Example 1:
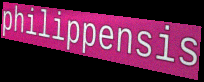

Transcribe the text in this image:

philippensis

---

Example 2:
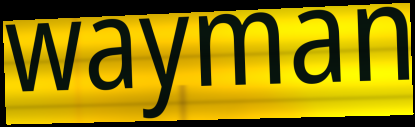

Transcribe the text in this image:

wayman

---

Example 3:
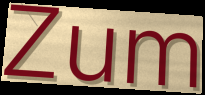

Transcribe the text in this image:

Zum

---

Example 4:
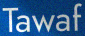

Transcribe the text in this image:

Tawaf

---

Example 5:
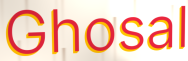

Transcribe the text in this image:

Ghosal